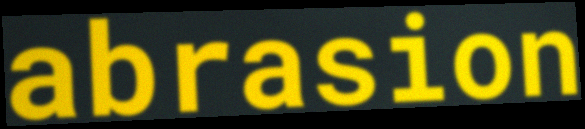
abrasion